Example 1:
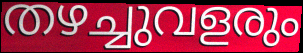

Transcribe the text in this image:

തഴച്ചുവളരും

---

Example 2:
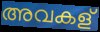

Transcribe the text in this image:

അവകള്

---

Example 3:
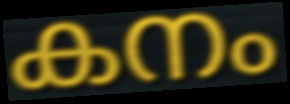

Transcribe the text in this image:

കനം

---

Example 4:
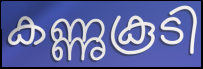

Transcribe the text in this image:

കണ്ണുകൂടി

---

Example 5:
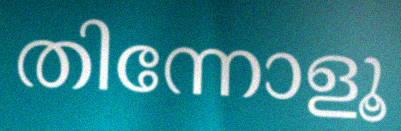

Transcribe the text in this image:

തിന്നോളൂ